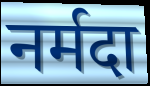
नर्मदा